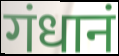
गंधानं